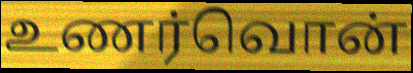
உணர்வொன்